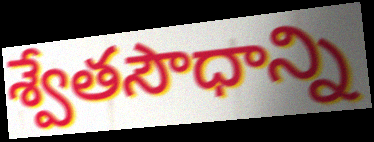
శ్వేతసౌధాన్ని